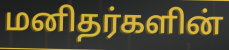
மனிதர்களின்